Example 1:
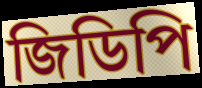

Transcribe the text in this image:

জিডিপি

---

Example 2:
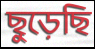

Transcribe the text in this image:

ছুড়েছি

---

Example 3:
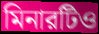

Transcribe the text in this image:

মিনারটিও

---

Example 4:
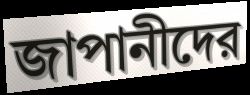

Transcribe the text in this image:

জাপানীদের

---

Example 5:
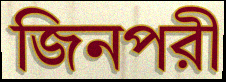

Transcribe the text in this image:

জিনপরী